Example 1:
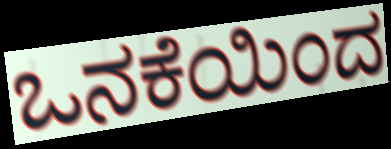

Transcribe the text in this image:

ಒನಕೆಯಿಂದ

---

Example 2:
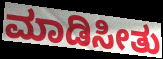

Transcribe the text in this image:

ಮಾಡಿಸೀತು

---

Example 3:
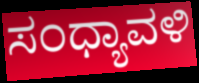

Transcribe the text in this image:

ಸಂಧ್ಯಾವಳಿ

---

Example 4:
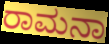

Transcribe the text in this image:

ರಾಮನಾ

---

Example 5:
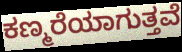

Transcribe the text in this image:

ಕಣ್ಮರೆಯಾಗುತ್ತವೆ